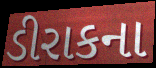
ડીરાકના